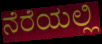
ನೆರೆಯಲ್ಲಿ